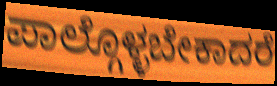
ಪಾಲ್ಗೊಳ್ಳಬೇಕಾದರೆ